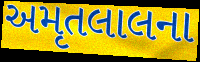
અમૃતલાલના